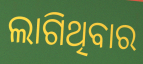
ଲାଗିଥିବାର